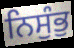
ਨਿਸੁੰਭੁ